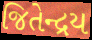
જિતેન્દ્રય